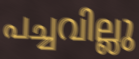
പച്ചവില്ലു